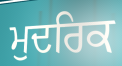
ਮੁਦਰਿਕ